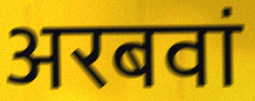
अरबवां